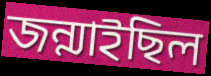
জন্মাইছিল